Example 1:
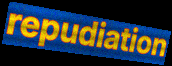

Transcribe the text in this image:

repudiation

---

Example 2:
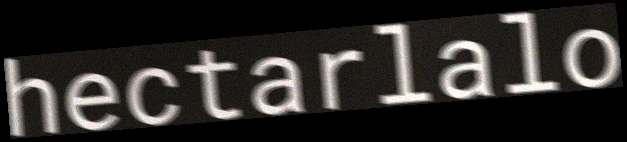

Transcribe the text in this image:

hectarlalo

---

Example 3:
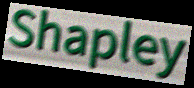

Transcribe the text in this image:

Shapley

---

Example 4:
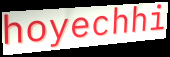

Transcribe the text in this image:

hoyechhi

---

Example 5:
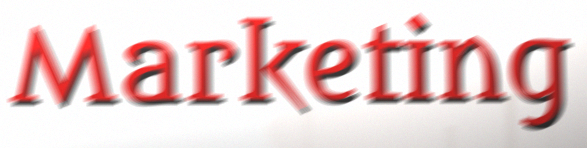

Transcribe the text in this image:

Marketing